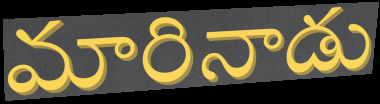
మారినాడు